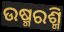
ଉଷ୍ମରଶ୍ମି